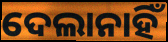
ଦେଲାନାହିଁ